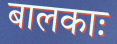
बालकाः